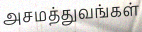
அசமத்துவங்கள்